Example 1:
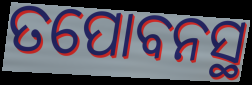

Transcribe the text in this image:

ତପୋବନସ୍ଥ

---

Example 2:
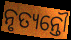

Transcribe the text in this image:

ନୃତ୍ୟନ୍ତୌ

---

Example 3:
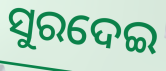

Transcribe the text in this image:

ସୁରଦେଇ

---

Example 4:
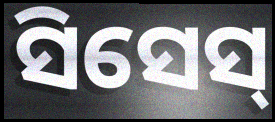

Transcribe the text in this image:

ସିସେସ୍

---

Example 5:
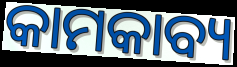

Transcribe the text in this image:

କାମକାବ୍ୟ